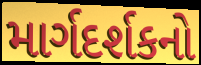
માર્ગદર્શકનો